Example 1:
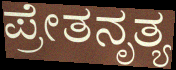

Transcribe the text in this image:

ಪ್ರೇತನೃತ್ಯ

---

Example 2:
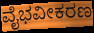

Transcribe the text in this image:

ವೈಭವೀಕರಣ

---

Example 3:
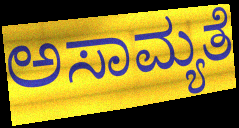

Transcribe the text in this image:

ಅಸಾಮ್ಯತೆ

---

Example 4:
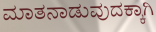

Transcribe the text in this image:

ಮಾತನಾಡುವುದಕ್ಕಾಗಿ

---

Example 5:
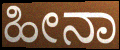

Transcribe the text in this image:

ಹೀನಾ